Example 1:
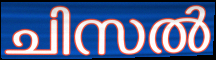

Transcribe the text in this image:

ചിസൽ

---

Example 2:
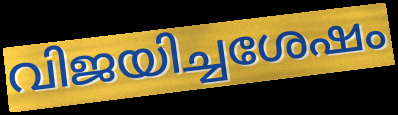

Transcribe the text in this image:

വിജയിച്ചശേഷം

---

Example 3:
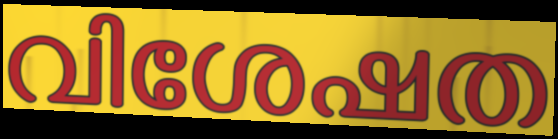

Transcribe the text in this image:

വിശേഷത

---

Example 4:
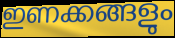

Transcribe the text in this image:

ഇണക്കങ്ങളും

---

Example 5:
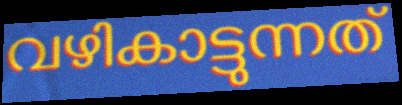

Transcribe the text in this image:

വഴികാട്ടുന്നത്